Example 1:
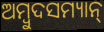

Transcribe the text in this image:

ଅମ୍ୱୁଦସମ୍ୟାନ୍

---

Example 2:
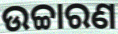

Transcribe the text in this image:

ଉଚ୍ଚାରଣ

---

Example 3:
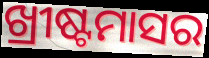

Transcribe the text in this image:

ଖ୍ରୀଷ୍ଟମାସର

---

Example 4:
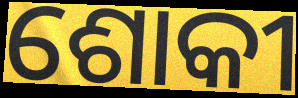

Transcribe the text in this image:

ଶୋକୀ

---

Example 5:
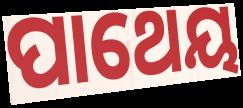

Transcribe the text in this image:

ପାଥେୟ